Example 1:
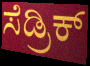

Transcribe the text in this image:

ಸೆಡ್ರಿಕ್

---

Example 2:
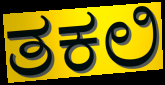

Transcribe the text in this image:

ತಕಲಿ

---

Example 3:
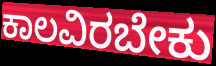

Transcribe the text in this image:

ಕಾಲವಿರಬೇಕು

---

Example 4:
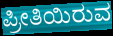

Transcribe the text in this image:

ಪ್ರೀತಿಯಿರುವ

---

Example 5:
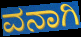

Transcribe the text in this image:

ವನಾಗಿ